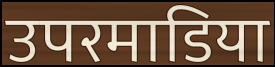
उपरमाडिया